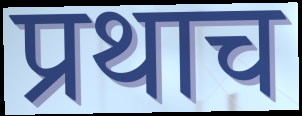
प्रथाच